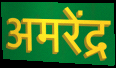
अमरेंद्र